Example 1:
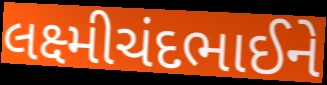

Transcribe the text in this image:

લક્ષ્મીચંદભાઈને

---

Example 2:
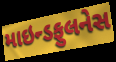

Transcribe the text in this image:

માઇન્ડફુલનેસ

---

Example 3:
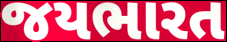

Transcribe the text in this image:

જયભારત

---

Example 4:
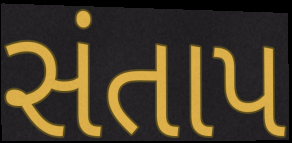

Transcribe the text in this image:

સંતાપ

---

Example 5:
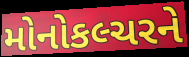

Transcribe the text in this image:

મોનોકલ્ચરને